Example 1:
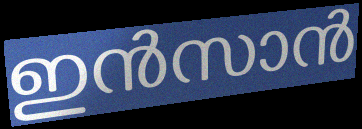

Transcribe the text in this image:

ഇൻസാൻ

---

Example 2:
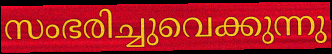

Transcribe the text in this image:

സംഭരിച്ചുവെക്കുന്നു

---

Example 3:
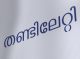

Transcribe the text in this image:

തണ്ടിലേറ്റി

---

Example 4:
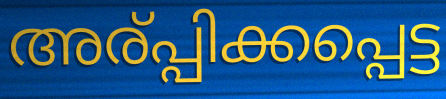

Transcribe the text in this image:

അര്പ്പിക്കപ്പെട്ട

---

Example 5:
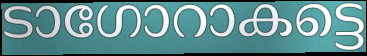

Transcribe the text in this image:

ടാഗോറാകട്ടെ